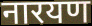
नारयण